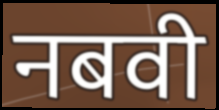
नबवी